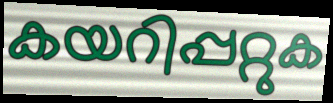
കയറിപ്പറ്റുക